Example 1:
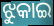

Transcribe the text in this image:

ଝୁକାଇ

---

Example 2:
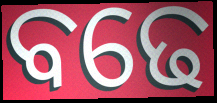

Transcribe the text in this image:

ବଢେ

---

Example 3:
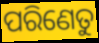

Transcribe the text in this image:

ପରିଣେତୁ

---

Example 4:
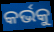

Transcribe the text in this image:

କର୍ଭକୁ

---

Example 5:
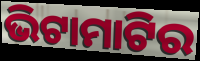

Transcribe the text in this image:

ଭିଟାମାଟିର